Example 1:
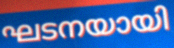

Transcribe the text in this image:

ഘടനയായി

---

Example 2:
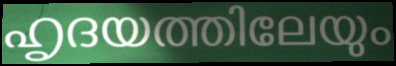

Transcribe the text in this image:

ഹൃദയത്തിലേയും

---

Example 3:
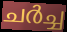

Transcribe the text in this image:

ചർച്ച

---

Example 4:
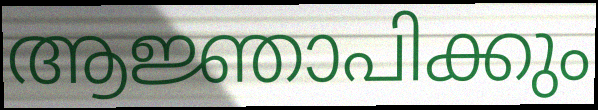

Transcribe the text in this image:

ആജ്ഞാപിക്കും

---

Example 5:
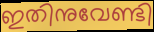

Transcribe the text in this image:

ഇതിനുവേണ്ടി